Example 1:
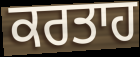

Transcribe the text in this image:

ਕਰਤਾਹ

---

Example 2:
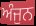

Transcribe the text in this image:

ਅੰਜੁਨ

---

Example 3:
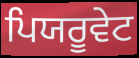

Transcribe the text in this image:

ਪਿਯਰੂਵੇਟ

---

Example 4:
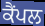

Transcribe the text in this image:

ਕੈਂਪਲ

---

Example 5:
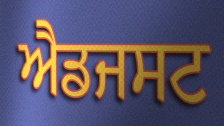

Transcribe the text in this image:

ਐਡਜਸਟ